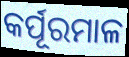
କର୍ପୂରମାଳ